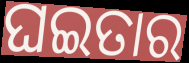
ଘଇତାର